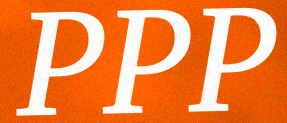
PPP